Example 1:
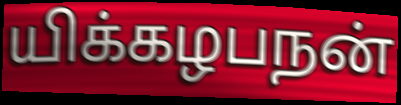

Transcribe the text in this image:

யிக்கழபநன்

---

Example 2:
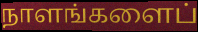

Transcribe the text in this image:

நாளங்களைப்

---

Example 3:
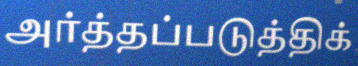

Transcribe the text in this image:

அர்த்தப்படுத்திக்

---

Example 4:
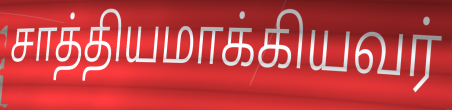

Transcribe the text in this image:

சாத்தியமாக்கியவர்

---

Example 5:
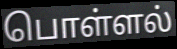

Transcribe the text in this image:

பொள்ளல்